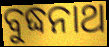
ବୁଦ୍ଧନାଥ